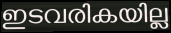
ഇടവരികയില്ല